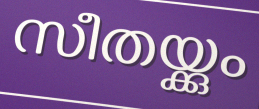
സീതയ്ക്കും